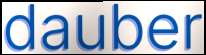
dauber